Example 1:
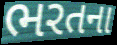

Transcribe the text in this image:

ભરતના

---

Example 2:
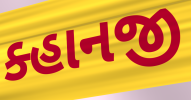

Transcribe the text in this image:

ક્હાનજી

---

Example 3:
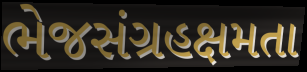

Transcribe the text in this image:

ભેજસંગ્રહક્ષમતા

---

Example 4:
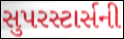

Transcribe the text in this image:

સુપરસ્ટાર્સની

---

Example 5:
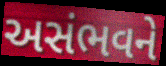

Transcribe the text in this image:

અસંભવને